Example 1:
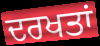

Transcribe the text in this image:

ਦਰਖਤਾਂ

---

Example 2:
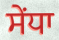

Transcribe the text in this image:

ਸੇਂਧਾ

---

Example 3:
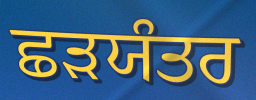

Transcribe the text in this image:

ਛੜਯੰਤਰ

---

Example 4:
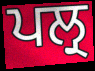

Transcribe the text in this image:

ਪਲ੍ਰ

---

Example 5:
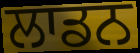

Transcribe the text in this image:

ਲਾਡਨ